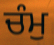
ਚੰਮੁ